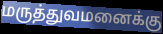
மருத்துவமனைக்கு